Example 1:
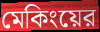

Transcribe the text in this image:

মেকিংয়ের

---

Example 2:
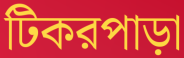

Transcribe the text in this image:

টিকরপাড়া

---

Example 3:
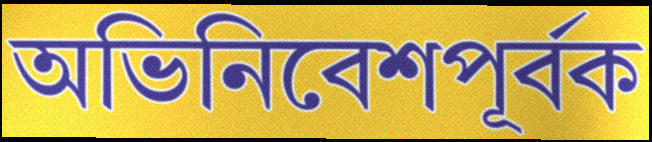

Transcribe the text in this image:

অভিনিবেশপূর্বক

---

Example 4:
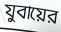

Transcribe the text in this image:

যুবায়ের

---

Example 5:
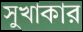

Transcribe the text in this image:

সুখাকার